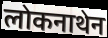
लोकनाथेन